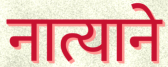
नात्याने